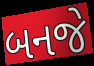
બનજે